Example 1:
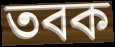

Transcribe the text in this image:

তবক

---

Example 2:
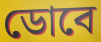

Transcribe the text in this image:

ডোবে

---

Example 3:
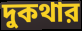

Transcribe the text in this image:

দুকথার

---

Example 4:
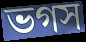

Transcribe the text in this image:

ভগস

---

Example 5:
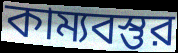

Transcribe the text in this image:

কাম্যবস্তুর